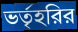
ভর্তৃহরির